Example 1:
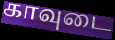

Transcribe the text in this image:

காவுடை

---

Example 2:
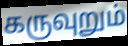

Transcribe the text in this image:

கருவுறும்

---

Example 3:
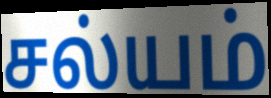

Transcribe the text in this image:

சல்யம்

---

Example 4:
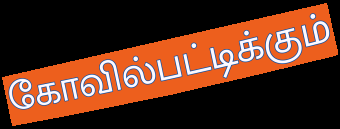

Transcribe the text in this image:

கோவில்பட்டிக்கும்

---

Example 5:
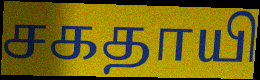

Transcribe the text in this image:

சகதாயி